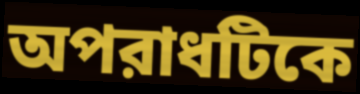
অপরাধটিকে